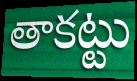
తాకట్టు